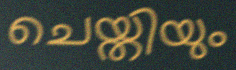
ചെയ്തിയും